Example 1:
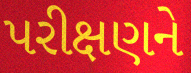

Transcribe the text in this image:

પરીક્ષણને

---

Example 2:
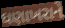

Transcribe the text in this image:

ઘણાખરાને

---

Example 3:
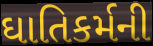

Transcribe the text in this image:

ઘાતિકર્મની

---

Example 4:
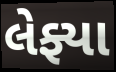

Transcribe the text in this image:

લેફ્યા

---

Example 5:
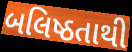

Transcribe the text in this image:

બલિષ્ઠતાથી